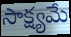
సాక్ష్యమే